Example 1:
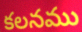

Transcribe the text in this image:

కలనము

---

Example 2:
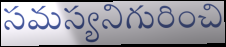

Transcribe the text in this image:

సమస్యనిగురించి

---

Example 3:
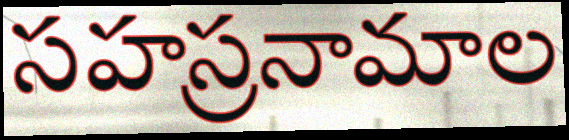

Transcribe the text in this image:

సహస్రనామాల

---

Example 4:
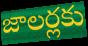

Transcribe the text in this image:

జాలర్లకు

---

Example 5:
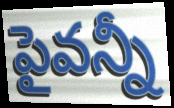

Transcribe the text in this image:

పైవన్నీ